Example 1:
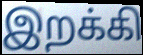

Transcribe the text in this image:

இறக்கி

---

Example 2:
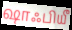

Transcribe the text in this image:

ஷாஃபியீ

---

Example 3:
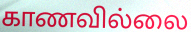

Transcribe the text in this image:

காணவில்லை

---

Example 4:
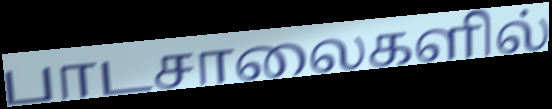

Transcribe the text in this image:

பாடசாலைகளில்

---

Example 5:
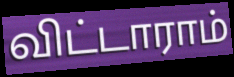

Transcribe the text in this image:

விட்டாராம்